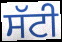
ਸੱਟੀ